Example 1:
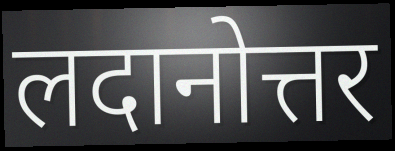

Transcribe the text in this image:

लदानोत्तर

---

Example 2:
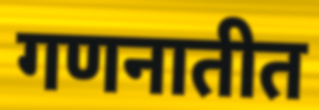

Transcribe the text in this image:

गणनातीत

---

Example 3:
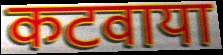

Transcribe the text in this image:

कटवाया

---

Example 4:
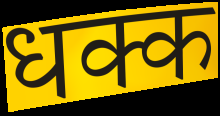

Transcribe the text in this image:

धक्क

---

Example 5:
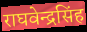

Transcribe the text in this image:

राघवेन्द्रसिंह